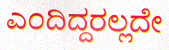
ಎಂದಿದ್ದರಲ್ಲದೇ